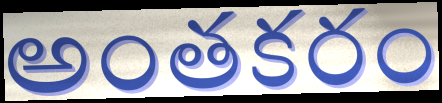
అంతకరం